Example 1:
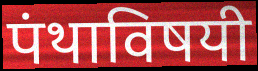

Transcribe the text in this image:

पंथाविषयी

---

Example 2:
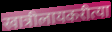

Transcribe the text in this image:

खात्रीलायकरीत्या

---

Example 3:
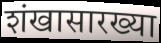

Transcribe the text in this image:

शंखासारख्या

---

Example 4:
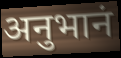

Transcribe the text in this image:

अनुभानं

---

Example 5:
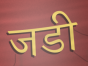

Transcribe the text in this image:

जडी